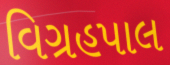
વિગ્રહપાલ